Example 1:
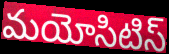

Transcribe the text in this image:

మయోసిటిస్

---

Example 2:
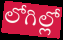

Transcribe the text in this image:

లోగిల్లో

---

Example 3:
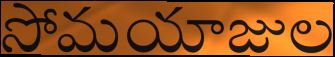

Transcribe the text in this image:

సోమయాజుల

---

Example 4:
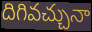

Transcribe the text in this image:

దిగివచ్చునా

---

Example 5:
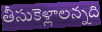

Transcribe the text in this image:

తీసుకెళ్లాలన్నది